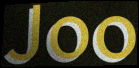
Joo